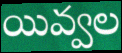
యివ్వల